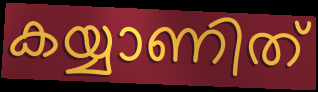
കയ്യാണിത്